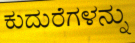
ಕುದುರೆಗಳನ್ನು